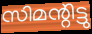
സിമന്റിട്ടു